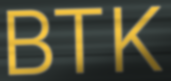
BTK